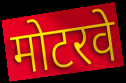
मोटरवे